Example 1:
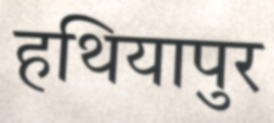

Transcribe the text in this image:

हथियापुर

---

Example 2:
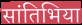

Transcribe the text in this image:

सांतिभिया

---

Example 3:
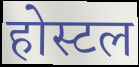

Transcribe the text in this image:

होस्टल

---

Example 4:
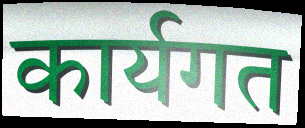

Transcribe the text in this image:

कार्यगत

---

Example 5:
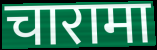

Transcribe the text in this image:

चारामा